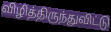
விழித்திருந்துவிட்டு